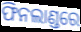
ଫିନଲାଣ୍ଡରେ